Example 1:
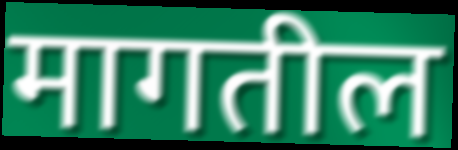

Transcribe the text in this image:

मागतील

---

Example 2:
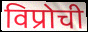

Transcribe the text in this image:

विप्रोची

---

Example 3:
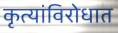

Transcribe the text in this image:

कृत्यांविरोधात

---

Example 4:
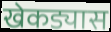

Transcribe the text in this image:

खेकड्यास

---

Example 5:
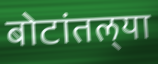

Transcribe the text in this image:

बोटांतल्या